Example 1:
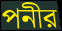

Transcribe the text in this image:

পনীর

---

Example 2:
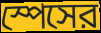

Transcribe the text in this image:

স্পেসের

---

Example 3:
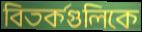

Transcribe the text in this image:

বিতর্কগুলিকে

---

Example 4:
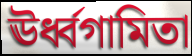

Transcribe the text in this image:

ঊর্ধ্বগামিতা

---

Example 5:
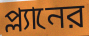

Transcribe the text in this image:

প্ল্যানের